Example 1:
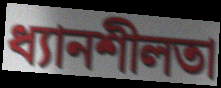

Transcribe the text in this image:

ধ্যানশীলতা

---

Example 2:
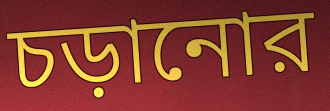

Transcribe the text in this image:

চড়ানোর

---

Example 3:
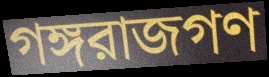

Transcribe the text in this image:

গঙ্গরাজগণ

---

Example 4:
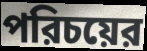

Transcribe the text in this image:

পরিচয়ের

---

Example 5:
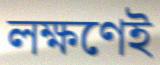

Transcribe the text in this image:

লক্ষণেই